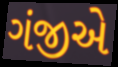
ગંજીએ